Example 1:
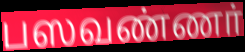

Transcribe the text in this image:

பஸவண்ணர்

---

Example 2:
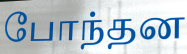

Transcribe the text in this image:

போந்தன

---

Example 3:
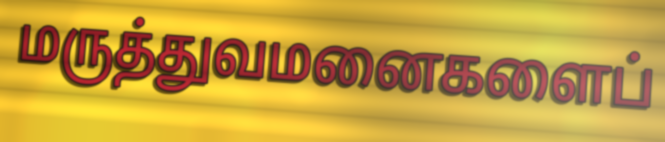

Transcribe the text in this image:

மருத்துவமனைகளைப்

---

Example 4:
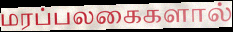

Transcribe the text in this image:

மரப்பலகைகளால்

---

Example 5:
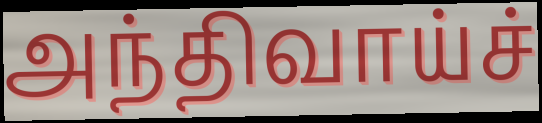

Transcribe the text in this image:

அந்திவாய்ச்